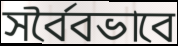
সর্বৈবভাবে